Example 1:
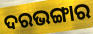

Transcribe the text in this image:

ଦରଭଙ୍ଗାର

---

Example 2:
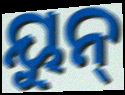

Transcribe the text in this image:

ୟୁନ୍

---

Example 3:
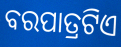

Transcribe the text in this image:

ବରପାତ୍ରଟିଏ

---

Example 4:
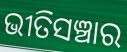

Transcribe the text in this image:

ଭୀତିସଞ୍ଚାର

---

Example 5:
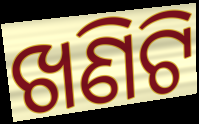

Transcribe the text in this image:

ଖଣିଟି